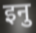
इनु